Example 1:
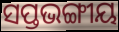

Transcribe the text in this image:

ସପ୍ତଭଙ୍ଗୀୟ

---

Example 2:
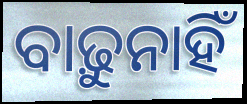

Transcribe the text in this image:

ବାଢ଼ୁନାହିଁ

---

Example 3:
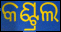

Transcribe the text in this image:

କଣ୍ଟ୍ରଲ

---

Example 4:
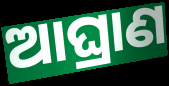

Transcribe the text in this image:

ଆଘ୍ରାଣ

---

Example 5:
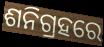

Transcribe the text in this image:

ଶନିଗ୍ରହରେ